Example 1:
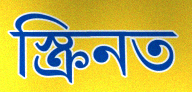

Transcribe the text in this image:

স্ক্ৰিনত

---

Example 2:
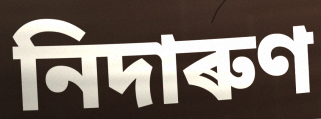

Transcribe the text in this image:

নিদাৰুণ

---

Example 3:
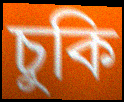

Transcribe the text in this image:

চুকি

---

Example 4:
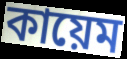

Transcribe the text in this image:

কায়েম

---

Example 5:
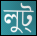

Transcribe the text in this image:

লুট্